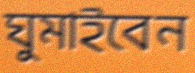
ঘুমাইবেন